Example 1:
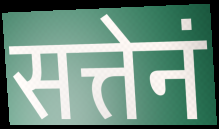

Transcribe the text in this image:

सत्तेनं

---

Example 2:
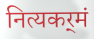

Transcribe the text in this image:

नित्यकर्मं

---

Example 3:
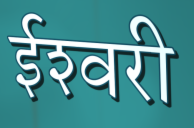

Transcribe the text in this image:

ईश्वरी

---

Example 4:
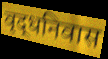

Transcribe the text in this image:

वृद्धनिवास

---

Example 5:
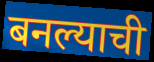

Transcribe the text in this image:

बनल्याची